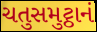
ચતુસમુટ્ઠાનં